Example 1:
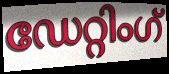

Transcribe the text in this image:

ഡേറ്റിംഗ്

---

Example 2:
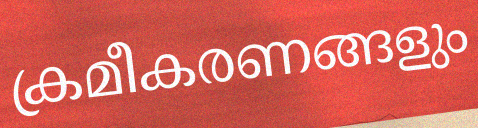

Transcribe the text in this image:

ക്രമീകരണങ്ങളും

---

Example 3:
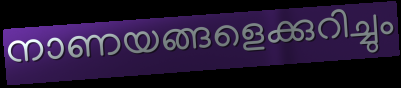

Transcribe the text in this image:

നാണയങ്ങളെക്കുറിച്ചും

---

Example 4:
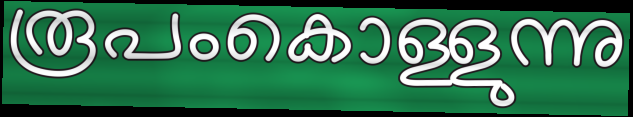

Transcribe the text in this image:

രൂപംകൊള്ളുന്നു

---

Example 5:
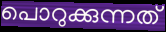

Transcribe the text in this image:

പൊറുക്കുന്നത്